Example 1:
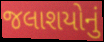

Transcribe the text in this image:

જલાશયોનું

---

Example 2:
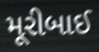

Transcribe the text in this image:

મૂરીબાઈ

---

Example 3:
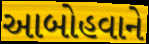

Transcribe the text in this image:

આબોહવાને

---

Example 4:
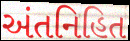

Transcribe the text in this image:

અંતનિહિત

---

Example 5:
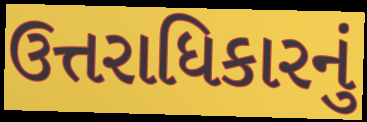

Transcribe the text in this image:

ઉત્તરાધિકારનું